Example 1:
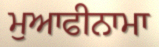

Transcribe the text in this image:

ਮੁਆਫੀਨਾਮਾ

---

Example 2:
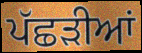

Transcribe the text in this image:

ਪੱਛੜੀਆਂ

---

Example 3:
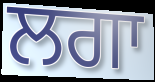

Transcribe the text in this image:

ਲਗਾ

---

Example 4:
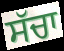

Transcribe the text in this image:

ਸੱਚਾ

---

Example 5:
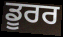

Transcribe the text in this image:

ਡੂਰਰ